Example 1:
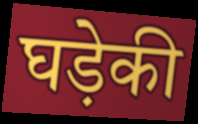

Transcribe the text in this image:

घड़ेकी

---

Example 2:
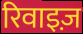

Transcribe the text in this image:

रिवाइज़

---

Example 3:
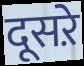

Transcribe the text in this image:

दूसऱे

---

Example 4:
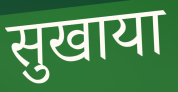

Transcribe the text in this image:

सुखाया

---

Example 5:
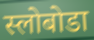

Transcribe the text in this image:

स्लोबोडा